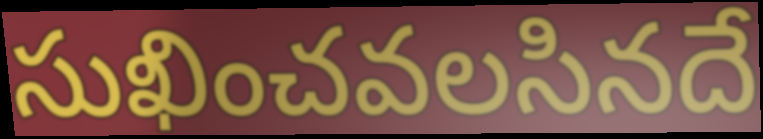
సుఖించవలసినదే